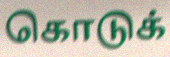
கொடுக்